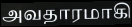
அவதாரமாகி